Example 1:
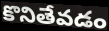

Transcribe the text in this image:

కొనితేవడం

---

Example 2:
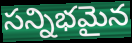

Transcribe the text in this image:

సన్నిభమైన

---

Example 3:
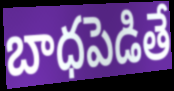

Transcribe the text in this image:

బాధపెడితే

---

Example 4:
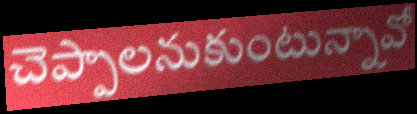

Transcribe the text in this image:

చెప్పాలనుకుంటున్నావో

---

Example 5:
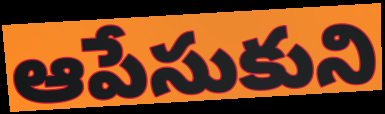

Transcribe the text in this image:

ఆపేసుకుని